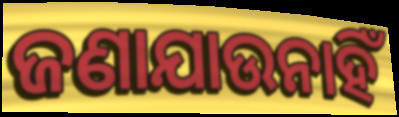
ଜଣାଯାଉନାହିଁ